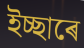
ইচ্ছাৰে